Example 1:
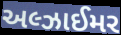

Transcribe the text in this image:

અલ્ઝાઈમર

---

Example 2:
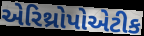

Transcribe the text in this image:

એરિથ્રોપોએટીક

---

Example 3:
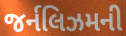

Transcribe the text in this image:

જર્નલિઝમની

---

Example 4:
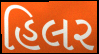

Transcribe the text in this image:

હિલર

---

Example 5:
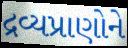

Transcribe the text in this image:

દ્રવ્યપ્રાણોને